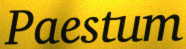
Paestum